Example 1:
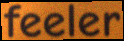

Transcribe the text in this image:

feeler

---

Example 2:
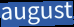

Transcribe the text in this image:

august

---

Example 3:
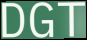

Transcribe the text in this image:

DGT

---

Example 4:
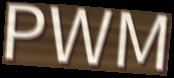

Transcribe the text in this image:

PWM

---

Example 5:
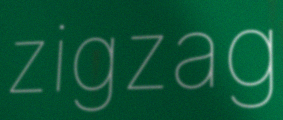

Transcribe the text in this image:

zigzag